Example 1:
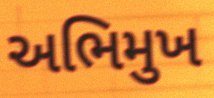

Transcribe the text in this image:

અભિમુખ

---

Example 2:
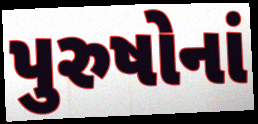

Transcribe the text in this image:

પુરુષોનાં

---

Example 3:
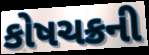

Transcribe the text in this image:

કોષચક્રની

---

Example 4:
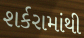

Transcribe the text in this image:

શર્કરામાંથી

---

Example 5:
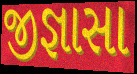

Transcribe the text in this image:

જીજ્ઞાસા